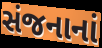
સંજનાનાં